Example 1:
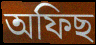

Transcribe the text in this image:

অফিছ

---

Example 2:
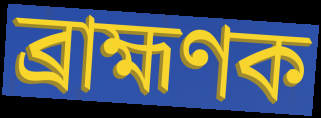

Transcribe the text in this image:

ব্ৰাহ্মণক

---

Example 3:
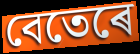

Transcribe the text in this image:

বেতেৰে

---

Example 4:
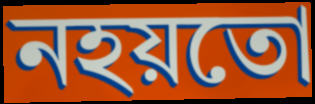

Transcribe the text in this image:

নহয়তো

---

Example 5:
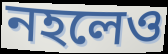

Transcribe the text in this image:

নহলেও